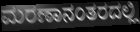
ಮರಣಾನಂತರದಲ್ಲಿ